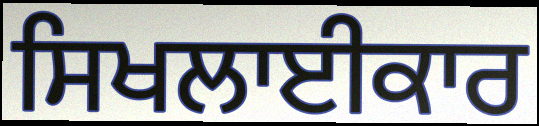
ਸਿਖਲਾਈਕਾਰ